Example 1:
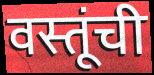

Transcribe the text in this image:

वस्तूंची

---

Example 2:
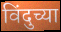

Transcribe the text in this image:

विंदुच्या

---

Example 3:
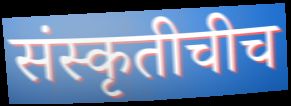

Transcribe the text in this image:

संस्कृतीचीच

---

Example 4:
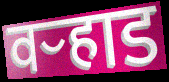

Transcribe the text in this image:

वऱ्हाड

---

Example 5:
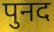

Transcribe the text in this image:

पुनद